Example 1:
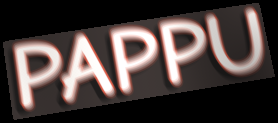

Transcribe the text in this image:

PAPPU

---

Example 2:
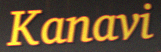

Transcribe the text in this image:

Kanavi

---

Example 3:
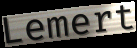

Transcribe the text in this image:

Lemert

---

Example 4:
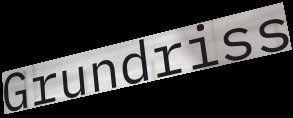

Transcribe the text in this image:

Grundriss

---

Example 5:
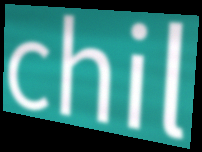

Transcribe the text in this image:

chil